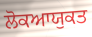
ਲੋਕਆਯੁਕਤ